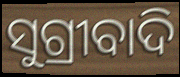
ସୁଗ୍ରୀବାଦି